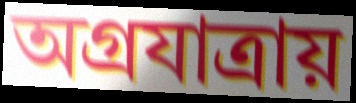
অগ্রযাত্রায়